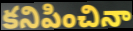
కనిపించినా